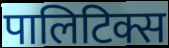
पालिटिक्स